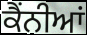
ਕੈਂਨੀਆਂ